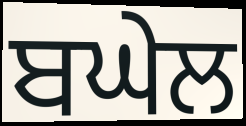
ਬਘੇਲ